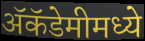
ॲकॅडेमीमध्ये